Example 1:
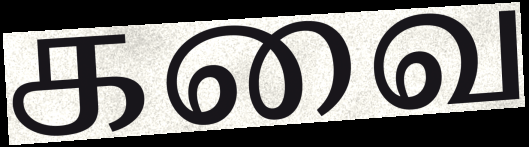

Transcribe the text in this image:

கவை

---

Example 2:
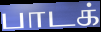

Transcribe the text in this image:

பாடக்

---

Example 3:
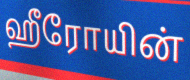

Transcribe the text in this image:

ஹீரோயின்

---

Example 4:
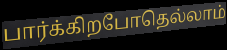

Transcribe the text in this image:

பார்க்கிறபோதெல்லாம்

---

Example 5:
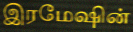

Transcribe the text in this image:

இரமேஷின்